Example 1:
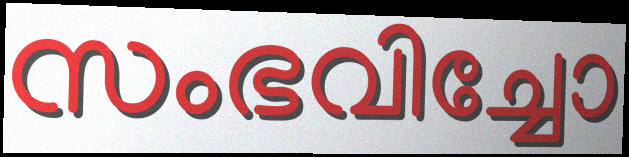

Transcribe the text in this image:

സംഭവിച്ചോ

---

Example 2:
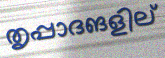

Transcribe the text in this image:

തൃപ്പാദങളില്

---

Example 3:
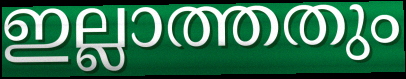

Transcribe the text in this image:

ഇല്ലാത്തതും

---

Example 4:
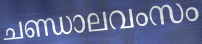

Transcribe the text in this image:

ചണ്ഡാലവംസം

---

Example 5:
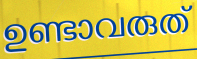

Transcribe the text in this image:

ഉണ്ടാവരുത്